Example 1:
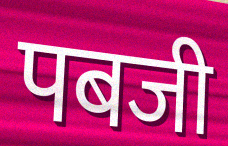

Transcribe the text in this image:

पबजी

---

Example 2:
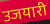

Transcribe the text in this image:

उजयारी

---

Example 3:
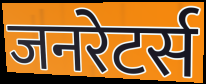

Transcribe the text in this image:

जनरेटर्स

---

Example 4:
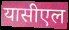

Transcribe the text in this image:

यासीएल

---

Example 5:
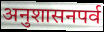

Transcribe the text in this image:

अनुशासनपर्व